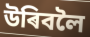
উৰিবলৈ